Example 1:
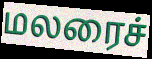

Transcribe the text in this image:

மலரைச்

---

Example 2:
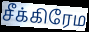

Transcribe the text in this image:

சீக்கிரேம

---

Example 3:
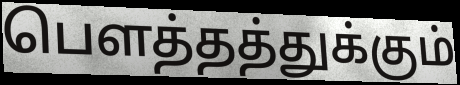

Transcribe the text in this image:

பௌத்தத்துக்கும்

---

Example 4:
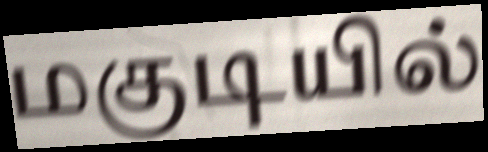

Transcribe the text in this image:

மகுடியில்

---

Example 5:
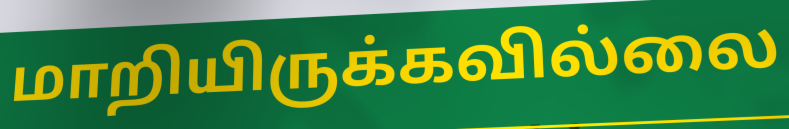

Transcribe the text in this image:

மாறியிருக்கவில்லை